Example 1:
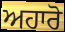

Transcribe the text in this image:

ਅਹਾਰੋ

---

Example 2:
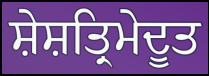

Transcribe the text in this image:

ਸ਼ੇਸ਼ਤ੍ਰਿਮੇਦੂਤ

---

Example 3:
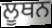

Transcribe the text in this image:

ਲੂਥਨ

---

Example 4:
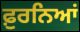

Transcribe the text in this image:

ਫ਼ੁਰਨਿਆਂ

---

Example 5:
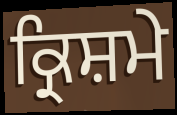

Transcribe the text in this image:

ਕ੍ਰਿਸ਼ਮੇ